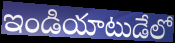
ఇండియాటుడేలో